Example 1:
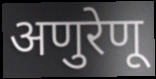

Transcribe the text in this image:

अणुरेणू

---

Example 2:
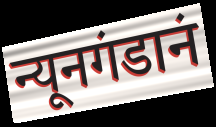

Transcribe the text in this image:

न्यूनगंडानं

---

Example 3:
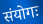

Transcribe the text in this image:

संयोगः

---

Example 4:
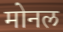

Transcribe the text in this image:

मोनल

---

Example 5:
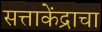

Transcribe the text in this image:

सत्ताकेंद्राचा